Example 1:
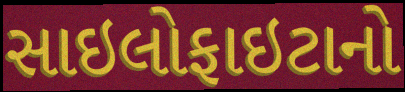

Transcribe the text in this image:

સાઇલોફાઇટાનો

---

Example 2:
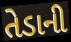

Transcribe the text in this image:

તેડાની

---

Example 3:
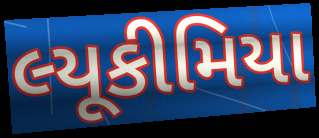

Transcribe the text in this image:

લ્યૂકીમિયા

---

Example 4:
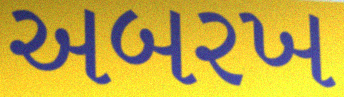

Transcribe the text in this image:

અબરખ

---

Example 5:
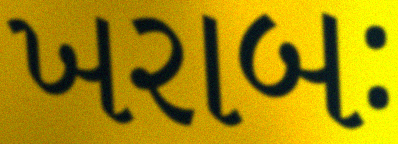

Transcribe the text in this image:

ખરાબઃ